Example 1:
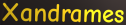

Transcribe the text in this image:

Xandrames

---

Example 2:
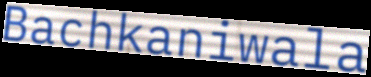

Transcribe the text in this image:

Bachkaniwala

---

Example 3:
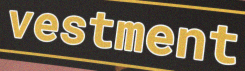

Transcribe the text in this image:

vestment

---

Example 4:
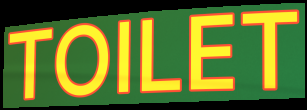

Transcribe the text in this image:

TOILET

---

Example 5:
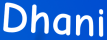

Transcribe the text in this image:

Dhani